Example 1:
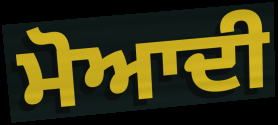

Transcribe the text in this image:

ਮੋਆਦੀ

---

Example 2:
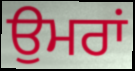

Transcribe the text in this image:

ਉਮਰਾਂ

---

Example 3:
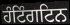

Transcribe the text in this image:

ਹੰਟਿੰਗਟਿਨ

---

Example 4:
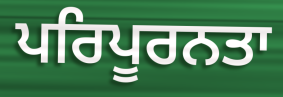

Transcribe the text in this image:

ਪਰਿਪੂਰਨਤਾ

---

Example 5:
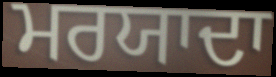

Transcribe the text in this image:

ਮਰਯਾਦਾ